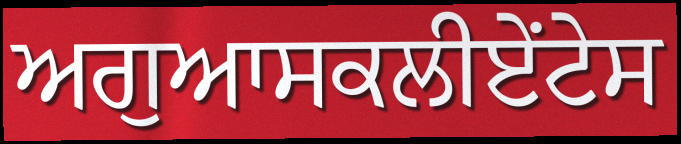
ਅਗੁਆਸਕਲੀਏਂਟੇਸ